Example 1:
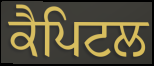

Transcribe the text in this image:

ਕੈਪਿਟਲ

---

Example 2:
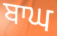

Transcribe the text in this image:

ਬਾਘ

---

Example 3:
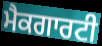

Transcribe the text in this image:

ਮੈਕਗਾਰਟੀ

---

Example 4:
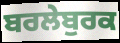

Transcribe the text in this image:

ਬਰਲੇਬੁਰਕ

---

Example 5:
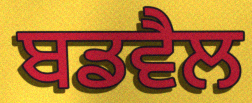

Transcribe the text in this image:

ਬਡਵੈਲ